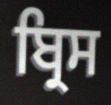
ਬ੍ਰਿਸ